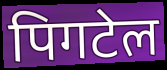
पिगटेल